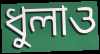
ধুলাও